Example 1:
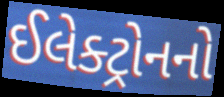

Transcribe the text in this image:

ઈલેક્ટ્રોનનો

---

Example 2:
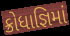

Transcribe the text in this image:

ક્રોધાજ્ઞિમાં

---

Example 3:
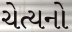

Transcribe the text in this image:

ચેત્યનો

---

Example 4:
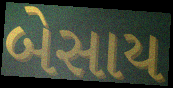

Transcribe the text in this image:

બેસાય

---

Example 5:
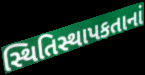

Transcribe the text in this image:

સ્થિતિસ્થાપકતાનાં